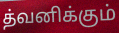
த்வனிக்கும்